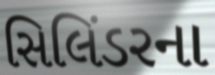
સિલિંડરના